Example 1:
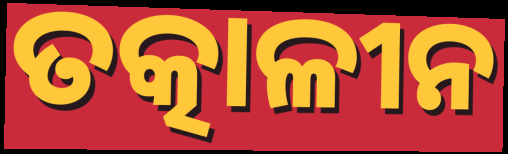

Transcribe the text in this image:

ତତ୍କାଳୀନ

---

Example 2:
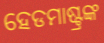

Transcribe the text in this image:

ହେଡମାଷ୍ଟ୍ରଙ୍କ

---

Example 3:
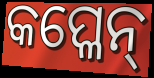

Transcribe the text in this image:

କପ୍ଳେନ୍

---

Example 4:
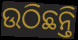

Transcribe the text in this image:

ଉଠିଛନ୍ତି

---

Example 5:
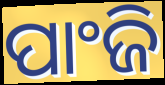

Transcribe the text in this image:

ପାଂଜି